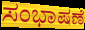
ಸಂಭಾಷಣೆ